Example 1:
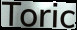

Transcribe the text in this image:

Toric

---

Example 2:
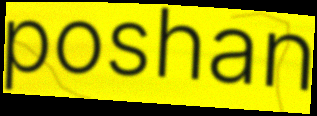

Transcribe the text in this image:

poshan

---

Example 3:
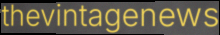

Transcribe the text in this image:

thevintagenews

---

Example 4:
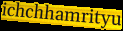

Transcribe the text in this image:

ichchhamrityu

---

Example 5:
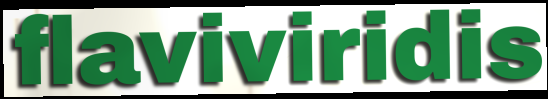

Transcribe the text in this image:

flaviviridis